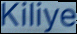
Kiliye